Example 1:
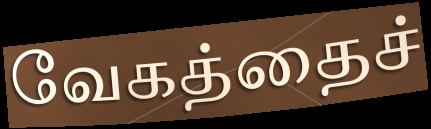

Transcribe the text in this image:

வேகத்தைச்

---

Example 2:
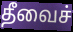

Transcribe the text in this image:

தீவைச்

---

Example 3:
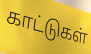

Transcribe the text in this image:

காட்டுகள்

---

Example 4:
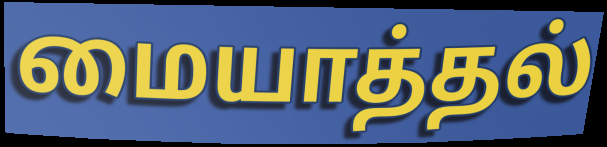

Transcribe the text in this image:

மையாத்தல்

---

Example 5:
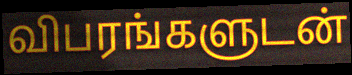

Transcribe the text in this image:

விபரங்களுடன்